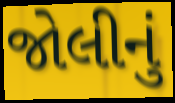
જોલીનું